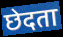
छेदता